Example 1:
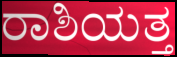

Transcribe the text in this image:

ರಾಶಿಯತ್ತ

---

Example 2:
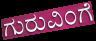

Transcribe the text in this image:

ಗುರುವಿಂಗೆ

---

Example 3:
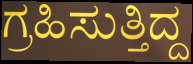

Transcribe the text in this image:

ಗ್ರಹಿಸುತ್ತಿದ್ದ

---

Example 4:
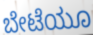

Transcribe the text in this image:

ಬೇಟೆಯೂ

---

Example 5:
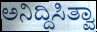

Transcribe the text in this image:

ಅನಿದ್ದಿಸಿತ್ವಾ